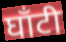
घाँटी